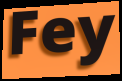
Fey